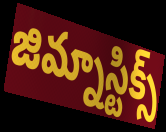
జిమ్నాస్టిక్స్